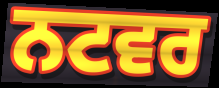
ਨਟਵਰ